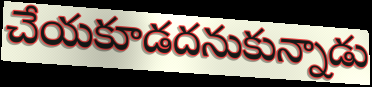
చేయకూడదనుకున్నాడు